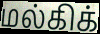
மல்கிக்